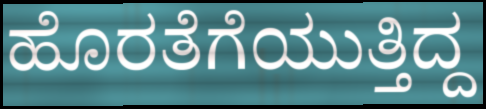
ಹೊರತೆಗೆಯುತ್ತಿದ್ದ